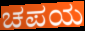
ಚಪಯ